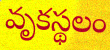
వృకస్థలం